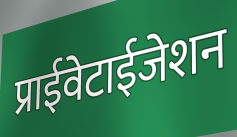
प्राईवेटाईजेशन